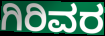
ಗಿರಿವರ